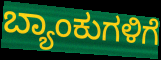
ಬ್ಯಾಂಕುಗಳಿಗೆ